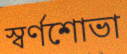
স্বর্ণশোভা